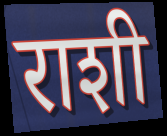
राशी